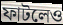
ফাটলেও